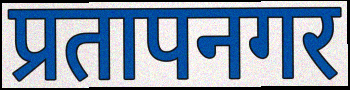
प्रतापनगर